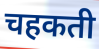
चहकती